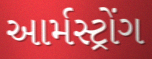
આર્મસ્ટ્રોંગ